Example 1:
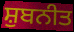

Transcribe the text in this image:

ਸ਼ੁਬਨੀਤ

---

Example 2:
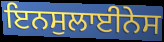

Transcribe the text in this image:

ਇਨਸੁਲਾਈਨੇਸ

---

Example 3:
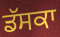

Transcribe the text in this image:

ਡੱਸਕਾ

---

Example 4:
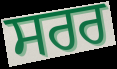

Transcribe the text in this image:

ਸਰਰ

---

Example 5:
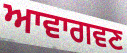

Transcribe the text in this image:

ਆਵਾਗਵਣ